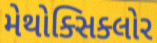
મેથોક્સિક્લોર